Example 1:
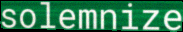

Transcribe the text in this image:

solemnize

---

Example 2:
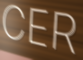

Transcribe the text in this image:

CER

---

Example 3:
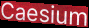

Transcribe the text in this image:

Caesium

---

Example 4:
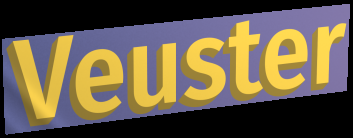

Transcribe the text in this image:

Veuster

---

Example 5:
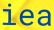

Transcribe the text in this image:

iea